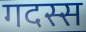
गदस्स